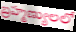
బ్రహ్మణ్యులలో